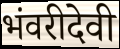
भंवरीदेवी